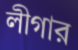
লীগার